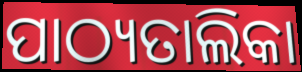
ପାଠ୍ୟତାଲିକା